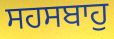
ਸਹਸਬਾਹੁ